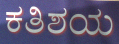
ಕತಿಶಯ